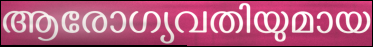
ആരോഗ്യവതിയുമായ